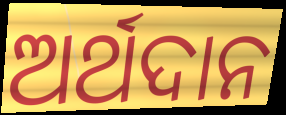
ଅର୍ଥଦାନ